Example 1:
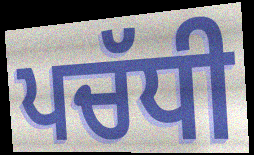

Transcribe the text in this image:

ਪਚੱਧੀ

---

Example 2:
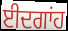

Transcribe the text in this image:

ਈਦਗਾਂਹ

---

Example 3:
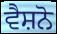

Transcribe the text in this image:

ਵੈਸ਼ਨੋ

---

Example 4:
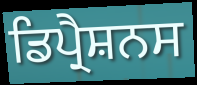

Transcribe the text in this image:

ਡਿਪ੍ਰੈਸ਼ਨਸ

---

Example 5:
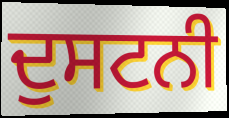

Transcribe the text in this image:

ਦੁਸਟਨੀ